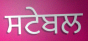
ਸਟੇਬਲ